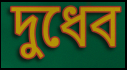
দুধেব